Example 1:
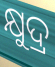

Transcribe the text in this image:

କ୍ଷୁଦ୍ର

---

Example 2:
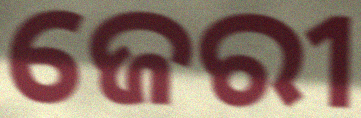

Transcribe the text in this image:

ଜେରୀ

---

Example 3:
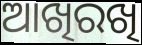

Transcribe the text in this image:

ଆଖିରଖି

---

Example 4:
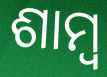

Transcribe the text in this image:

ଶାମ୍ୱ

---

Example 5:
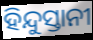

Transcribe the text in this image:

ହିନ୍ଦୁସ୍ତାନୀ